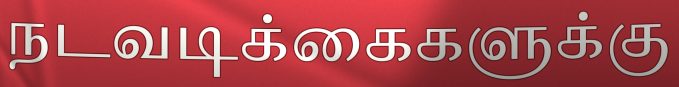
நடவடிக்கைகளுக்கு